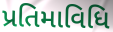
પ્રતિમાવિધિ